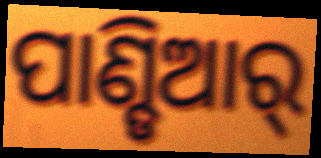
ପାଣ୍ଡିଆର୍